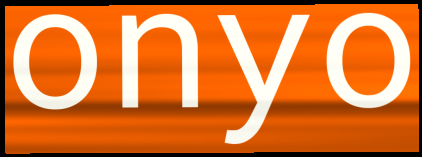
onyo